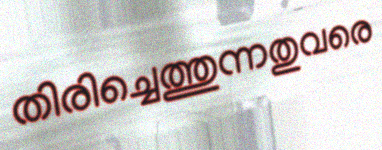
തിരിച്ചെത്തുന്നതുവരെ